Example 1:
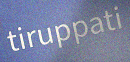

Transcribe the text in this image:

tiruppati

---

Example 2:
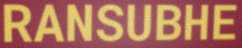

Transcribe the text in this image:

RANSUBHE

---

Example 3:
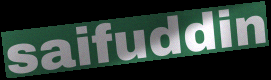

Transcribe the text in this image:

saifuddin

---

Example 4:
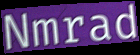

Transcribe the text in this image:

Nmrad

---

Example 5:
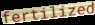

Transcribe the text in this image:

fertilized